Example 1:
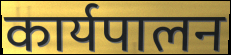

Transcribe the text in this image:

कार्यपालन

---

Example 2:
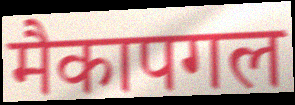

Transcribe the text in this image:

मैकापगल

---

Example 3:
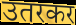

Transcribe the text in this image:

उतरकर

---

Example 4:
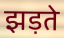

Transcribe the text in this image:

झड़ते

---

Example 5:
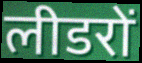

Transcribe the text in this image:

लीडरों